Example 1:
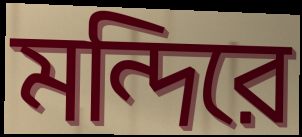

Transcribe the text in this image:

মন্দিরে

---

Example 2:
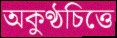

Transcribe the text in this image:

অকুণ্ঠচিত্তে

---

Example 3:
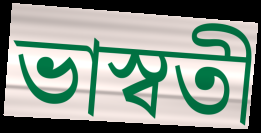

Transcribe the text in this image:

ভাস্বতী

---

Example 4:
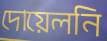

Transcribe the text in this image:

দোয়েলনি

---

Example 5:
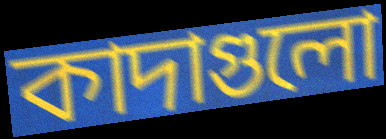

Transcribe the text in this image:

কাদাগুলো